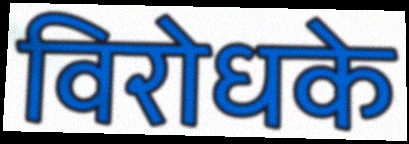
विरोधके